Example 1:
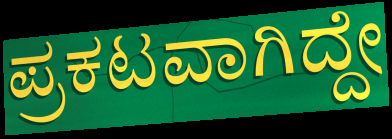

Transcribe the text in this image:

ಪ್ರಕಟವಾಗಿದ್ದೇ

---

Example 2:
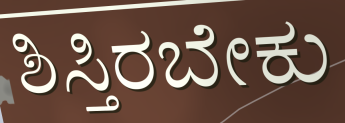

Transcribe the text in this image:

ಶಿಸ್ತಿರಬೇಕು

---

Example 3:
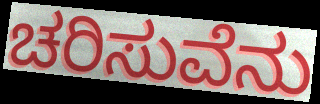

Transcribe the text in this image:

ಚರಿಸುವೆನು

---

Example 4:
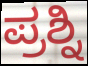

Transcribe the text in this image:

ಪ್ರಶ್ನಿ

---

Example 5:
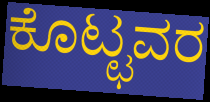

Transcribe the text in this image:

ಕೊಟ್ಟವರ